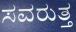
ಸವರುತ್ತ